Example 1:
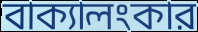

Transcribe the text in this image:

বাক্যালংকার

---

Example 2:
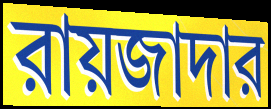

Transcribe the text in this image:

রায়জাদার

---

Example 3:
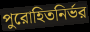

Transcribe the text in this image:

পুরোহিতনির্ভর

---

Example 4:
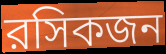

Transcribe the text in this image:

রসিকজন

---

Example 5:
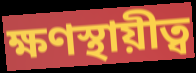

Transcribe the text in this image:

ক্ষণস্থায়ীত্ব